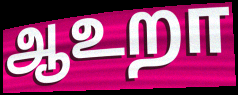
ஆஉறா